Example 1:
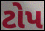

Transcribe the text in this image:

ટોપ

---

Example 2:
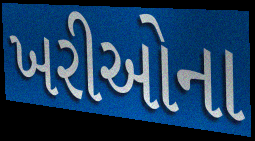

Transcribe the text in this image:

ખરીઓના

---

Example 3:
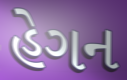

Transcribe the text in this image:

હેગન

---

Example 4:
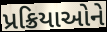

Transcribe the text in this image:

પ્રક્રિયાઓને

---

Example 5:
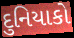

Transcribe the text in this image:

દુનિયાકો